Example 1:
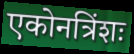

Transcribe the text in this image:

एकोनत्रिंशः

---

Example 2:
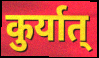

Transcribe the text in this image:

कुर्यात्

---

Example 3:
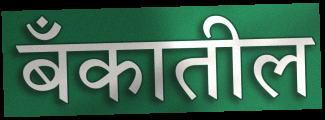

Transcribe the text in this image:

बँकातील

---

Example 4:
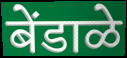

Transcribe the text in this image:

बेंडाळे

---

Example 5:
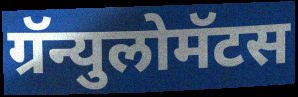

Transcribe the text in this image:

ग्रॅन्युलोमॅटस